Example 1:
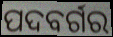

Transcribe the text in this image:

ପଦବର୍ଗର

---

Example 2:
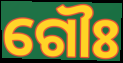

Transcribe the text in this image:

ଗୌଃ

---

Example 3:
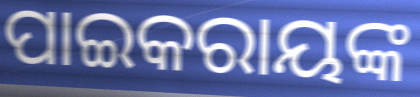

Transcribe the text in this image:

ପାଇକରାୟଙ୍କ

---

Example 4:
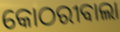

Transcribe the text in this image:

କୋଠରୀବାଲା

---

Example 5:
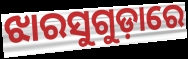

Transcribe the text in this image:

ଝାରସୁଗୁଡ଼ାରେ